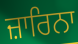
ਜ਼ਾਰਿਨਾ